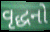
વૃદ્ધનો